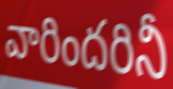
వారిందరినీ